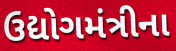
ઉદ્યોગમંત્રીના